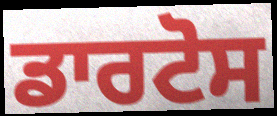
ਡਾਰਟੋਸ